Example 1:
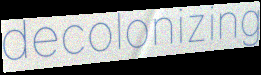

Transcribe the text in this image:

decolonizing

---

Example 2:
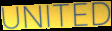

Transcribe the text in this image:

UNITED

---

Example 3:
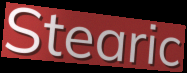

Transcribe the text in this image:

Stearic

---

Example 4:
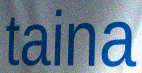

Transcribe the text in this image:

taina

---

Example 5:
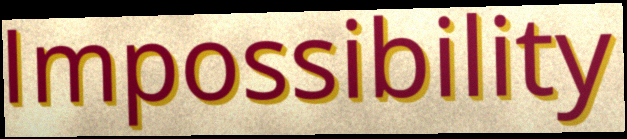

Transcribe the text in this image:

Impossibility